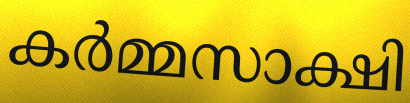
കർമ്മസാക്ഷി